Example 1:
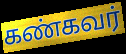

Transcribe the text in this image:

கண்கவர்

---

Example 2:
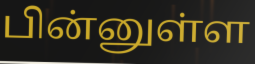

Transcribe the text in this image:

பின்னுள்ள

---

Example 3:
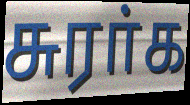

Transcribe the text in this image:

சுரர்க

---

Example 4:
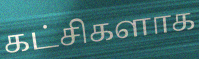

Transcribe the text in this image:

கட்சிகளாக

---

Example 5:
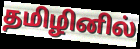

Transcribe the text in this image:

தமிழினில்